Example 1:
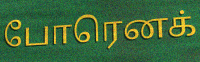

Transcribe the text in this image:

போரெனக்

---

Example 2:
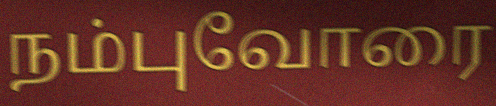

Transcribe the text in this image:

நம்புவோரை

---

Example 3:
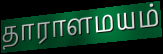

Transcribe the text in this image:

தாராளமயம்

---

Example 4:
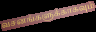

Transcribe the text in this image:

வசனங்களுக்காகவும்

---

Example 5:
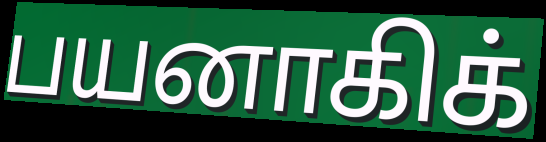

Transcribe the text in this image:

பயனாகிக்